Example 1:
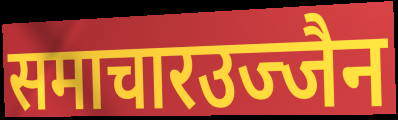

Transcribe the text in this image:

समाचारउज्जैन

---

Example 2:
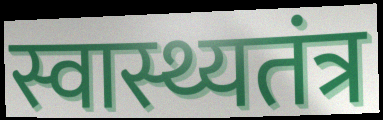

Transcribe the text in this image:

स्वास्थ्यतंत्र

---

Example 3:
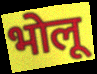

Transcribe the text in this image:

भोलू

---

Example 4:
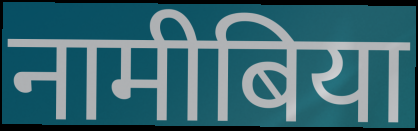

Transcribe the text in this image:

नामीबिया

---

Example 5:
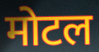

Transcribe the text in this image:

मोटल